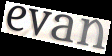
evan